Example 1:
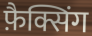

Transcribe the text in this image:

फ़ैक्सिंग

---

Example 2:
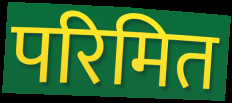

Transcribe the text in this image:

परिमित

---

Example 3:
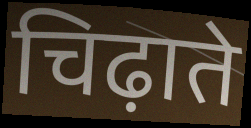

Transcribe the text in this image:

चिढ़ाते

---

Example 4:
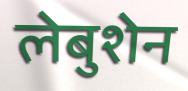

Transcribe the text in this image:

लेबुशेन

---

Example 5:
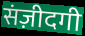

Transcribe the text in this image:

संज़ीदगी